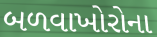
બળવાખોરોના